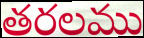
తరలము